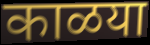
काळया